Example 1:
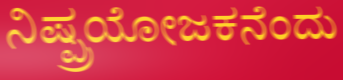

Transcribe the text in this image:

ನಿಷ್ಪ್ರಯೋಜಕನೆಂದು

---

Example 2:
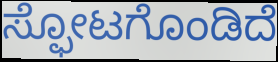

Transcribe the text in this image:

ಸ್ಫೋಟಗೊಂಡಿದೆ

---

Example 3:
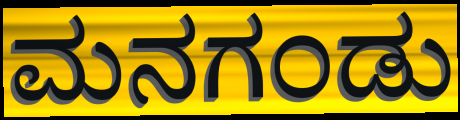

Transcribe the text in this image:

ಮನಗಂಡು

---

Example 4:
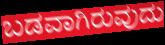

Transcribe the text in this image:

ಬಡವಾಗಿರುವುದು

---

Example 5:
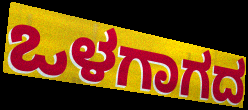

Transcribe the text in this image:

ಒಳಗಾಗದ